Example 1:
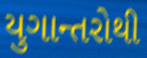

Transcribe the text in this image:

યુગાન્તરોથી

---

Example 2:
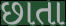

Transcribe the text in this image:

છાતા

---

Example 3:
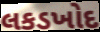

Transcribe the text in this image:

લકડખોદ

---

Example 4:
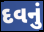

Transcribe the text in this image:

દવનું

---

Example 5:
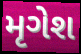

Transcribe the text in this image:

મૃગેશ